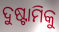
ଦୁଷ୍ଟାମିକୁ